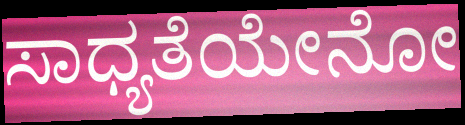
ಸಾಧ್ಯತೆಯೇನೋ